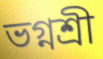
ভগ্নশ্রী